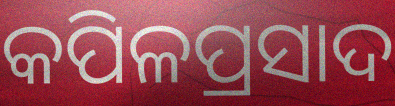
କପିଳପ୍ରସାଦ